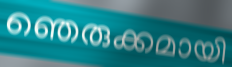
ഞെരുക്കമായി